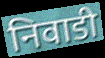
निवाडी